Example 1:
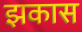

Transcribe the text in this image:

झकास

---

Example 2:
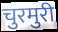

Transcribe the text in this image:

चुरमुरी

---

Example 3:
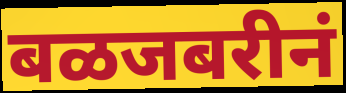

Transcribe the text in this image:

बळजबरीनं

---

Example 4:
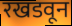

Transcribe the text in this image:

रखडवून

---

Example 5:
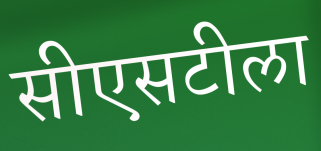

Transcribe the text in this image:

सीएसटीला